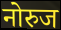
नोरुज